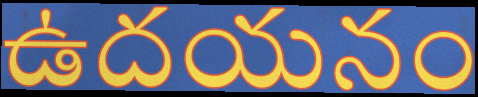
ఉదయనం